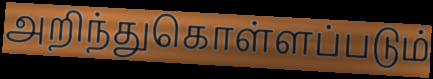
அறிந்துகொள்ளப்படும்